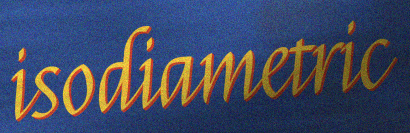
isodiametric